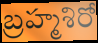
బ్రహ్మశిరో